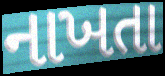
નાખતા